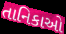
તાનિકાઓ